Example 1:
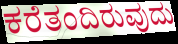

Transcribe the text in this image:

ಕರೆತಂದಿರುವುದು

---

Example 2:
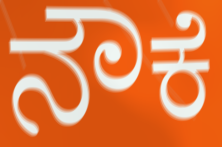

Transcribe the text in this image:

ನೌಕೆ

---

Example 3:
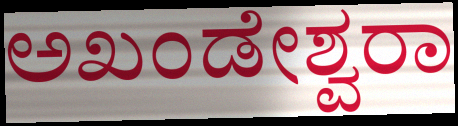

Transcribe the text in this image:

ಅಖಂಡೇಶ್ವರಾ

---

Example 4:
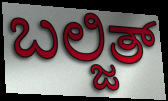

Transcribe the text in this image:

ಬಲ್ಜಿತ್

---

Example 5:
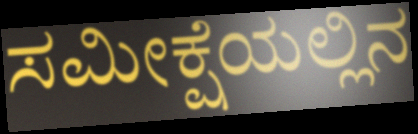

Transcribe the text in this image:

ಸಮೀಕ್ಷೆಯಲ್ಲಿನ